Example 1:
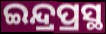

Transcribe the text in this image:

ଇନ୍ଦ୍ରପ୍ରସ୍ଥ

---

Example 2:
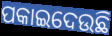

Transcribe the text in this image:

ପକାଇଦେଉଛି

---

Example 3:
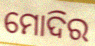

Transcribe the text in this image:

ମୋଦିର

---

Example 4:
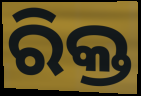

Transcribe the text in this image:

ରିକ୍ତ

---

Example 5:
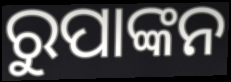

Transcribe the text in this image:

ରୁପାଙ୍କନ